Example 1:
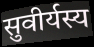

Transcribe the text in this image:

सुवीर्यस्य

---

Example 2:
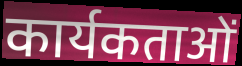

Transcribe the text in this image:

कार्यकताओं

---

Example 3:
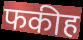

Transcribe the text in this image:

फकीह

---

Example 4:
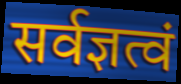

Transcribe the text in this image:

सर्वज्ञत्वं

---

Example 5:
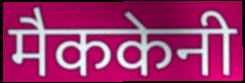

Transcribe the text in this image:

मैककेनी